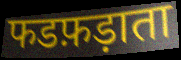
फडफ़ड़ाता